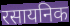
रसायनिक